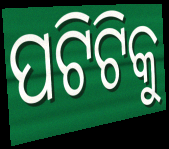
ପଟିଟିକୁ